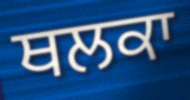
ਥਲਕਾ